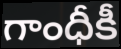
గాంధీకీ